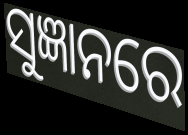
ସୁଜ୍ଞାନରେ